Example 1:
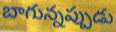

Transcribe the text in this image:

బాగున్నప్పుడు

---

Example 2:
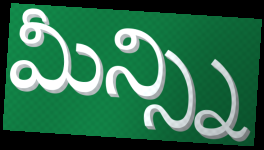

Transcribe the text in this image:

మీన్స్ని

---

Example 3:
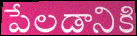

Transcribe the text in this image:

పేలడానికి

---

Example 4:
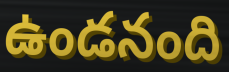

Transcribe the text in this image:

ఉండనంది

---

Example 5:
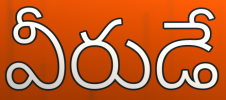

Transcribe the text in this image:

వీరుడే